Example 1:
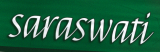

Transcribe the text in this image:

saraswati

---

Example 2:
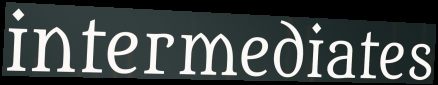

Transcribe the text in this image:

intermediates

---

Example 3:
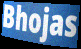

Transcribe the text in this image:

Bhojas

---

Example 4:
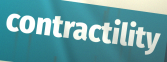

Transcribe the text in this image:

contractility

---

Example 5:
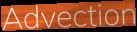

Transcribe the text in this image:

Advection